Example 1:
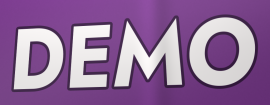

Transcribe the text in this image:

DEMO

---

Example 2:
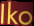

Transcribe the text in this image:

Iko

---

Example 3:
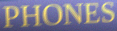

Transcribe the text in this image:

PHONES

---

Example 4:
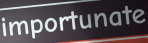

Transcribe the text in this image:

importunate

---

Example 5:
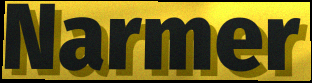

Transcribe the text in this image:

Narmer